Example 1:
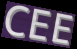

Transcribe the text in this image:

CEE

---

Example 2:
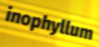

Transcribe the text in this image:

inophyllum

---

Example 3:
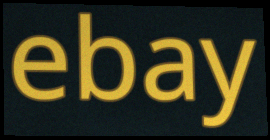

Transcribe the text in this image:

ebay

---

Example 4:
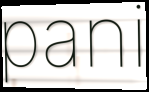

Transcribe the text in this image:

pani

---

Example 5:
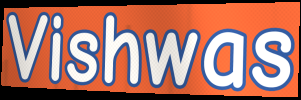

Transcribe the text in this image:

Vishwas